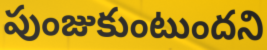
పుంజుకుంటుందని